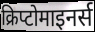
क्रिप्टोमाइनर्स